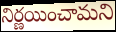
నిర్ణయించామని